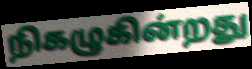
நிகழுகின்றது